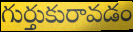
గుర్తుకురావడం